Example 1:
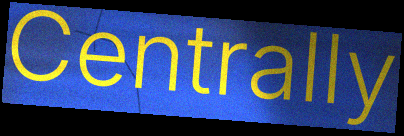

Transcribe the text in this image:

Centrally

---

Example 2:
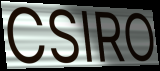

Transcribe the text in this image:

CSIRO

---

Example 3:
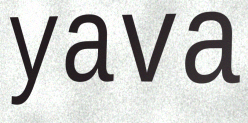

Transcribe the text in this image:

yava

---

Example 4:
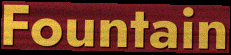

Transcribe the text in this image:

Fountain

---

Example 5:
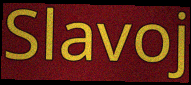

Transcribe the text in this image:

Slavoj